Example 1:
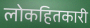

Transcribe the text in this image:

लोकहितकारी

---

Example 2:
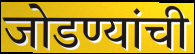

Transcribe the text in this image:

जोडण्यांची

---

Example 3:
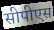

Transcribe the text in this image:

सीपीएस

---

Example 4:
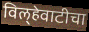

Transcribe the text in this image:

विल्हेवाटीचा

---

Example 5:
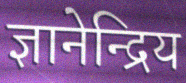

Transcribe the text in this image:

ज्ञानेन्द्रिय